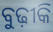
ବୁଢ଼ୀକି